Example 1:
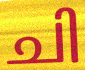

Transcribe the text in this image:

ചി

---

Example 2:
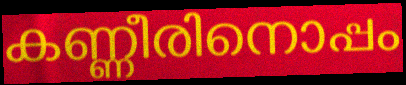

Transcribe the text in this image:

കണ്ണീരിനൊപ്പം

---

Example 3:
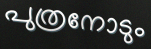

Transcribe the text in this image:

പുത്രനോടും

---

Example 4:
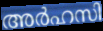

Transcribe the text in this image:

അർഹസി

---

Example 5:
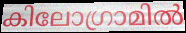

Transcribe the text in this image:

കിലോഗ്രാമിൽ